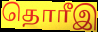
தொரீஇ